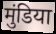
मुंडिया